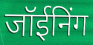
जॉईनिंग